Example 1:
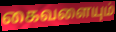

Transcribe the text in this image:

கைவளையும்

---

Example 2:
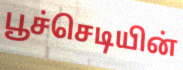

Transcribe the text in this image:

பூச்செடியின்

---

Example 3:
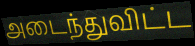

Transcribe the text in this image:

அடைந்துவிட்ட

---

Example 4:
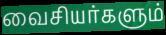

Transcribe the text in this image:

வைசியர்களும்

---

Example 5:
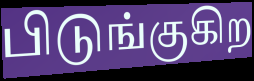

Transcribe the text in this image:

பிடுங்குகிற